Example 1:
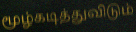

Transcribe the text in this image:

மூழ்கடித்துவிடும்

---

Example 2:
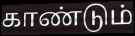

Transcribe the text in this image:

காண்டும்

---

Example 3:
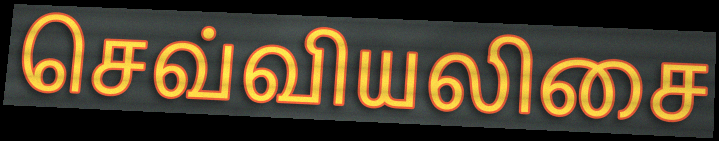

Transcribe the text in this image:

செவ்வியலிசை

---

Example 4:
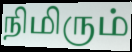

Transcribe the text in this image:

நிமிரும்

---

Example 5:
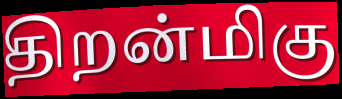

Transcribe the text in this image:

திறன்மிகு